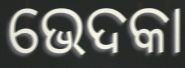
ଭେଦକା